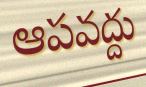
ఆపవద్దు